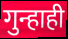
गुन्हाही